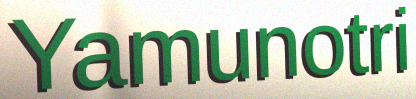
Yamunotri